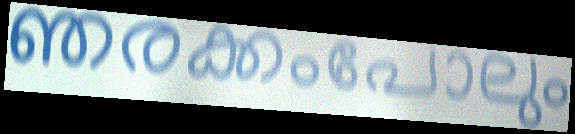
ഞരക്കംപോലും